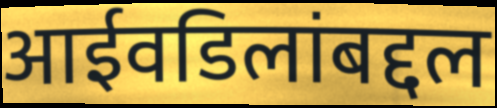
आईवडिलांबद्दल